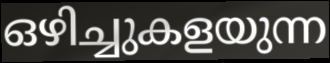
ഒഴിച്ചുകളയുന്ന